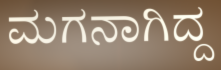
ಮಗನಾಗಿದ್ದ